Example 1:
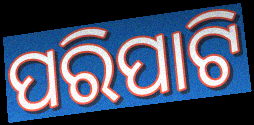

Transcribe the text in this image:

ପରିପାଟି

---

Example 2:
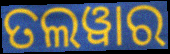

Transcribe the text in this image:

ତଲୱାର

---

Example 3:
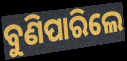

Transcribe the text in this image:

ବୁଣିପାରିଲେ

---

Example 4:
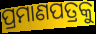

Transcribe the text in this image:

ପ୍ରମାଣପତ୍ରକୁ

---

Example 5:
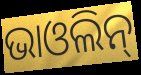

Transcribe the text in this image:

ଭାଓଲିନ୍